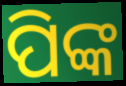
ପିଙ୍କ